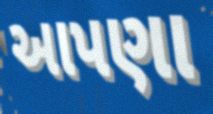
આપણા